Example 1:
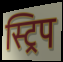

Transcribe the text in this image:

स्ट्रिप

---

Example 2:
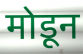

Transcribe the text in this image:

मोडून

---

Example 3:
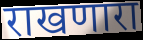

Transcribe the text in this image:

राखणारा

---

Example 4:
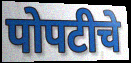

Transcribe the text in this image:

पोपटीचे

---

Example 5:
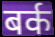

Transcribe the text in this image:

बर्क